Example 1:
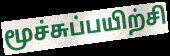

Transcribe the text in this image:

மூச்சுப்பயிற்சி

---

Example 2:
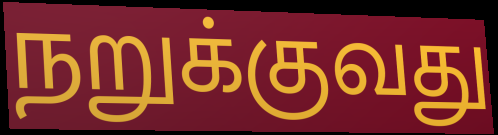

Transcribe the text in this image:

நறுக்குவது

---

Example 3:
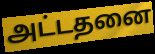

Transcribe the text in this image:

அட்டதனை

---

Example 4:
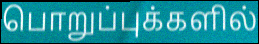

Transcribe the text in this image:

பொறுப்புக்களில்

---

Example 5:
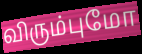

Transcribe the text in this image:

விரும்புமோ